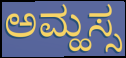
ಅಮ್ಹಸ್ಸ